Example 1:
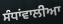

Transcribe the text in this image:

ਸੰਧਾਂਵਾਲੀਆ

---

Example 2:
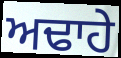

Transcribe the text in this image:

ਅਢਾਹੇ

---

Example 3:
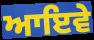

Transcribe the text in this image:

ਆਇਵੇ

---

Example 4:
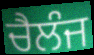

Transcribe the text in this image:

ਚੈਲੰਜ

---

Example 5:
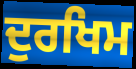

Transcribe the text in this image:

ਦੁਰਖਿਮ